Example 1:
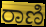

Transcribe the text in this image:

ರಾಣಿ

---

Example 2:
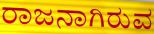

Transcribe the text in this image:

ರಾಜನಾಗಿರುವ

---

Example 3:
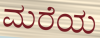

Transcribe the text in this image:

ಮರೆಯ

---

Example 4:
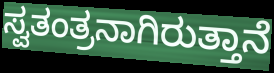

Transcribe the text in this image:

ಸ್ವತಂತ್ರನಾಗಿರುತ್ತಾನೆ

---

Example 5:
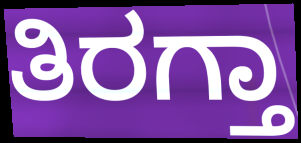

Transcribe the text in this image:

ತಿರಗ್ತಾ